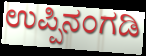
ಉಪ್ಪಿನಂಗಡಿ